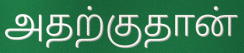
அதற்குதான்